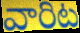
వారిట